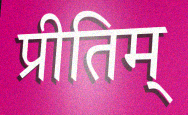
प्रीतिम्